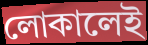
লোকালেই